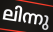
ലിന്നു